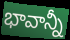
భావాన్నీ